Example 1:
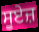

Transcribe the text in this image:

ਸੂਏਜ਼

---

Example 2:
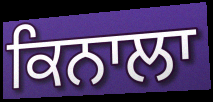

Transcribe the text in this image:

ਕਿਨਾਲਾ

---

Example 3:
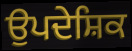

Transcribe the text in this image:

ਉਪਦੇਸ਼ਿਕ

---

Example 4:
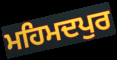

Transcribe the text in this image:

ਮਹਿਮਦਪੁਰ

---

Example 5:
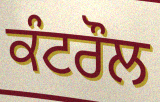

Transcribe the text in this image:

ਕੰਟਰੌਲ